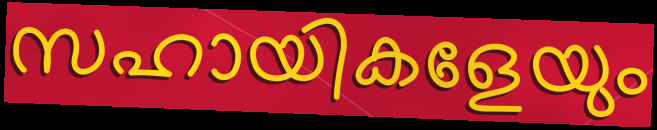
സഹായികളേയും